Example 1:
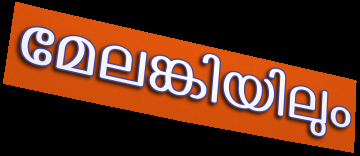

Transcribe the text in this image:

മേലങ്കിയിലും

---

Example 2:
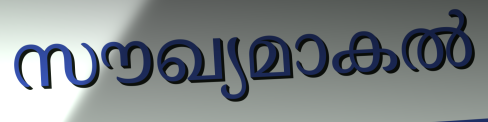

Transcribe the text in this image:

സൗഖ്യമാകൽ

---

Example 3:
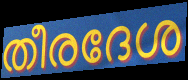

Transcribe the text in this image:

തീരദേശ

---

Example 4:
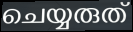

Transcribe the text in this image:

ചെയ്യരുത്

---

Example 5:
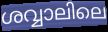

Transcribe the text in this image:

ശവ്വാലിലെ